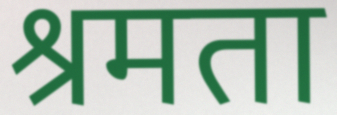
श्रमता